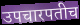
उपचारपतीच